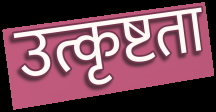
उत्कृष्टता